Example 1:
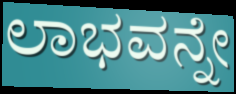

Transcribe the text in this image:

ಲಾಭವನ್ನೇ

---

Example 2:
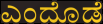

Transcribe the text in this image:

ಎಂದೊಡೆ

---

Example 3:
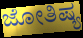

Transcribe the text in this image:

ಜೋತಿಷ್ಯ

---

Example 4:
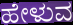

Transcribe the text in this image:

ಹೇಳುವ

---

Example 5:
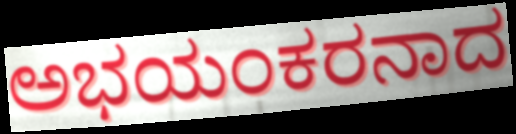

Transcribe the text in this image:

ಅಭಯಂಕರನಾದ